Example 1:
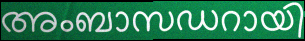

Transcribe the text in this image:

അംബാസഡറായി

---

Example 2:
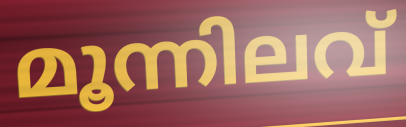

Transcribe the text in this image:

മൂന്നിലവ്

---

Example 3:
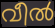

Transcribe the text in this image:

വീൽ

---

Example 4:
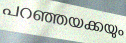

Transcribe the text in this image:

പറഞ്ഞയക്കയും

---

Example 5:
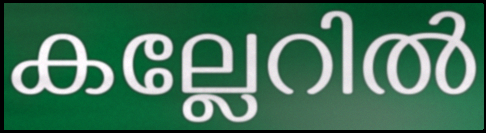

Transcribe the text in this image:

കല്ലേറിൽ